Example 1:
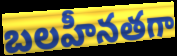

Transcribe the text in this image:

బలహీనతగా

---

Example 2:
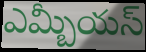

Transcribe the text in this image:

ఎమ్బీయస్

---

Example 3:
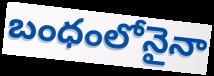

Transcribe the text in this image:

బంధంలోనైనా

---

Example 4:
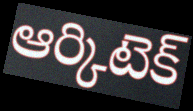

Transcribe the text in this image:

ఆర్కిటెక్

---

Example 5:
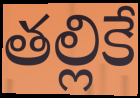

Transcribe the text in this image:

తల్లికే